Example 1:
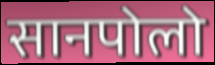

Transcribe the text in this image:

सानपोलो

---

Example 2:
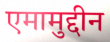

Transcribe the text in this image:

एमामुद्दीन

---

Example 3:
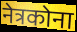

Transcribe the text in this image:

नेत्रकोना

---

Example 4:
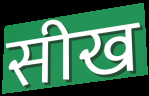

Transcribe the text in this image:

सीख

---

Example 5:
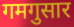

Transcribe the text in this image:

गमगुसार